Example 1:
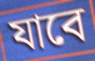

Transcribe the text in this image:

যাবে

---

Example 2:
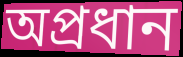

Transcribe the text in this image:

অপ্ৰধান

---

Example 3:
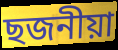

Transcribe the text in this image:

ছজনীয়া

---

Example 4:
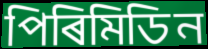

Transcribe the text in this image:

পিৰিমিডিন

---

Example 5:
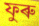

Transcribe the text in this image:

ফুৰু